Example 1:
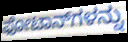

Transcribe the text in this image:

ಫೋಟಾನ್‌ಗಳನ್ನು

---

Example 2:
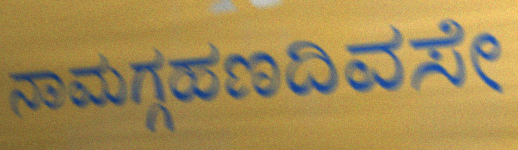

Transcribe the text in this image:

ನಾಮಗ್ಗಹಣದಿವಸೇ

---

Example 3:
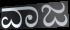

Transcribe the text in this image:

ವಾಜ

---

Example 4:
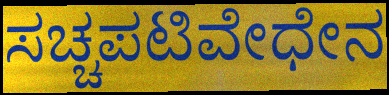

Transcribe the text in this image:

ಸಚ್ಚಪಟಿವೇಧೇನ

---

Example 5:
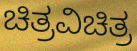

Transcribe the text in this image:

ಚಿತ್ರವಿಚಿತ್ರ